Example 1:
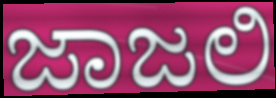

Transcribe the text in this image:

ಜಾಜಲಿ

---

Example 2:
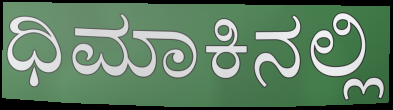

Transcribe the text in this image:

ಧಿಮಾಕಿನಲ್ಲಿ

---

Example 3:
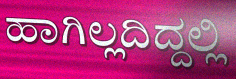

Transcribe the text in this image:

ಹಾಗಿಲ್ಲದಿದ್ದಲ್ಲಿ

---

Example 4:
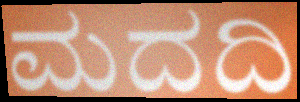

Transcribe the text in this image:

ಮದದಿ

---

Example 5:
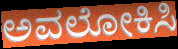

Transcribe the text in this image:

ಅವಲೋಕಿಸಿ